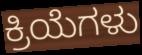
ಕ್ರಿಯೆಗಳು